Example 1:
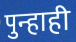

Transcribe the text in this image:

पुन्हाही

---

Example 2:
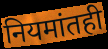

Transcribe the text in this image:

नियमांतही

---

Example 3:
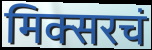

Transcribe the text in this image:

मिक्सरचं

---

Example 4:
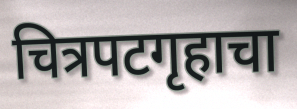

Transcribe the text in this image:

चित्रपटगृहाचा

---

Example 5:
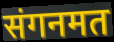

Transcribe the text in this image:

संगनमत